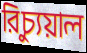
রিচ্যুয়াল